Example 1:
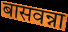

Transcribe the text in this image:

बासवन्ना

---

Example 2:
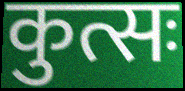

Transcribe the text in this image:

कुत्सः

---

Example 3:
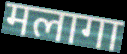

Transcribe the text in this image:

मलागा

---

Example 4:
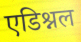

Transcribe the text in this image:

एडिश्नल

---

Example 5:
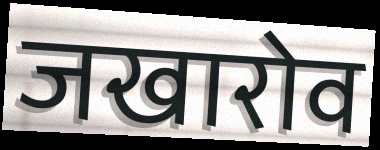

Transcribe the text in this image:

जखारोव